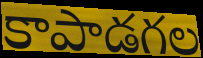
కాపాడగల